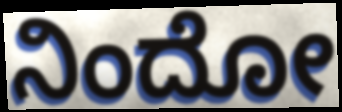
ನಿಂದೋ